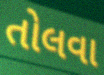
તોલવા